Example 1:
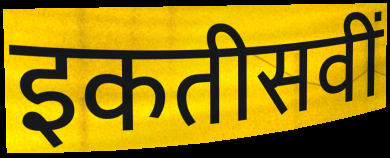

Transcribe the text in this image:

इकतीसवीं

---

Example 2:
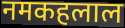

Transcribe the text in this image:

नमकहलाल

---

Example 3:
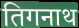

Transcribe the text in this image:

तिगनाथ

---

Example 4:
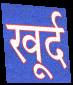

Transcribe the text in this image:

खूर्द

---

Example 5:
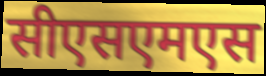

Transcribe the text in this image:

सीएसएमएस